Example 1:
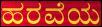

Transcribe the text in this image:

ಹರವೆಯ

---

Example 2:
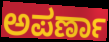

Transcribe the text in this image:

ಅಪರ್ಣಾ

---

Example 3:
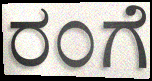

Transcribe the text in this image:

ರಂಗೆ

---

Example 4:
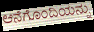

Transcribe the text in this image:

ಆನೆಗೊಂದಿಯನ್ನು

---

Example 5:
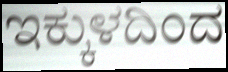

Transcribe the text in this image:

ಇಕ್ಕುಳದಿಂದ